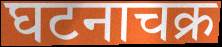
घटनाचक्र